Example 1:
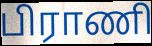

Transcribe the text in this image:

பிராணி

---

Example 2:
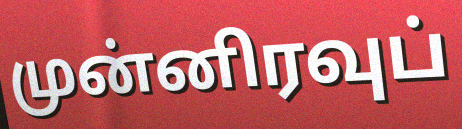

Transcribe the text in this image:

முன்னிரவுப்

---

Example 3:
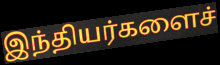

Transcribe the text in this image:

இந்தியர்களைச்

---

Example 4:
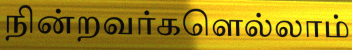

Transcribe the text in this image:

நின்றவர்களெல்லாம்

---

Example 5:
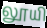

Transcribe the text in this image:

லூயி